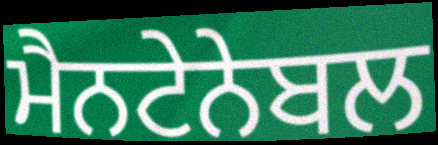
ਮੈਨਟੇਨੇਬਲ